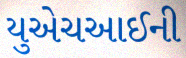
યુએચઆઈની